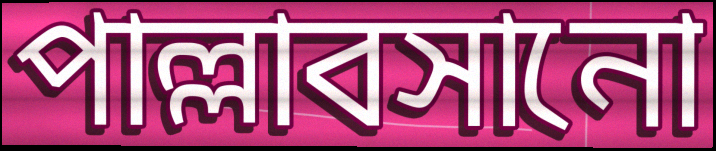
পাল্লাবসানো